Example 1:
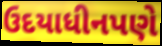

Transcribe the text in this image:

ઉદયાધીનપણે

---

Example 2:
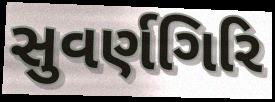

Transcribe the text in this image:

સુવર્ણગિરિ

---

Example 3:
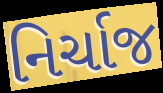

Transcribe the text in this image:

નિર્ચાજ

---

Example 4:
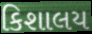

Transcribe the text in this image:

કિશાલય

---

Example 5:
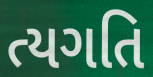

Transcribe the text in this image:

ત્યગતિ